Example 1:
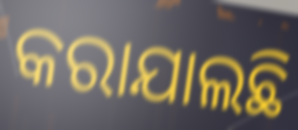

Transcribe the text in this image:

କରାଯାଲଛି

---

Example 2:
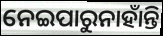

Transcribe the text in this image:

ନେଇପାରୁନାହାଁନ୍ତି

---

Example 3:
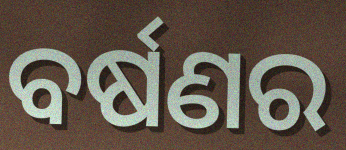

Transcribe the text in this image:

ବର୍ଷଣର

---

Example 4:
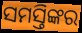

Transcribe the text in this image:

ସମସ୍ତିଙ୍କର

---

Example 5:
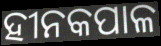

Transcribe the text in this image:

ହୀନକପାଳ